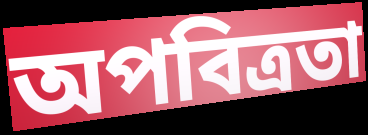
অপবিত্রতা